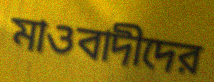
মাওবাদীদের